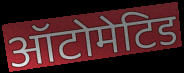
ऑटोमेटिड